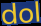
dol